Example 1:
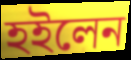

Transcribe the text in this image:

হইলেন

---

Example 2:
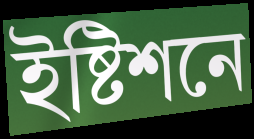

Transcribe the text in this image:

ইষ্টিশনে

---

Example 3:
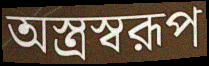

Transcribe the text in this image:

অস্ত্রস্বরূপ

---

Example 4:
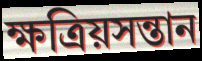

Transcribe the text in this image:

ক্ষত্রিয়সন্তান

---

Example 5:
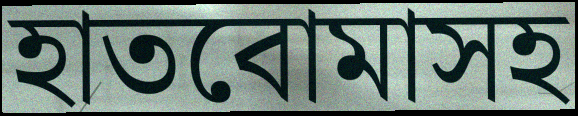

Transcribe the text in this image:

হাতবোমাসহ